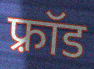
फ़्रॉड